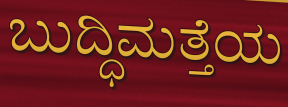
ಬುದ್ಧಿಮತ್ತೆಯ